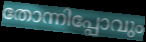
തോന്നിപ്പോവും